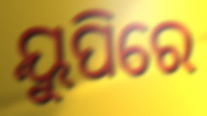
ୟୁପିରେ